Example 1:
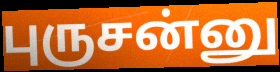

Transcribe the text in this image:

புருசன்னு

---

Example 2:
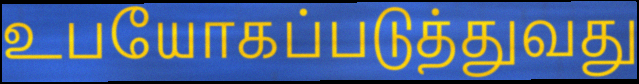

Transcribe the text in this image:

உபயோகப்படுத்துவது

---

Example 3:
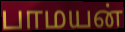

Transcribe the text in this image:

பாமயன்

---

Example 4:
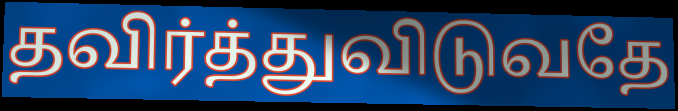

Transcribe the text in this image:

தவிர்த்துவிடுவதே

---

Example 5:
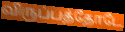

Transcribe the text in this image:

விருப்பத்தோடே